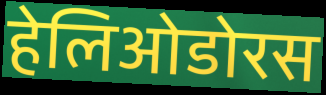
हेलिओडोरस